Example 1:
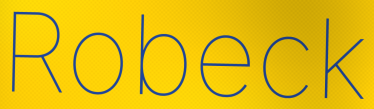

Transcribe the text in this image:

Robeck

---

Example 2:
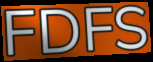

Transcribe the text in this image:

FDFS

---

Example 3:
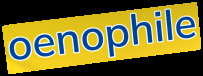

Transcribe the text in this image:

oenophile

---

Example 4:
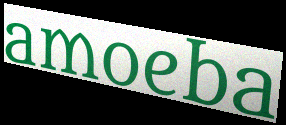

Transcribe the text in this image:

amoeba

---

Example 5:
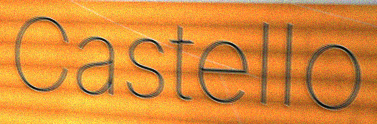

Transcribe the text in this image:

Castello